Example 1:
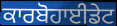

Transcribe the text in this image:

ਕਾਰਬੋਹਾਈਡੇਟ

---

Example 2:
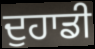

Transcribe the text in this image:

ਦੁਹਾਡੀ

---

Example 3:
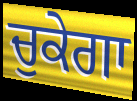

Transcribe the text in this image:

ਚੁਕੇਗਾ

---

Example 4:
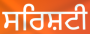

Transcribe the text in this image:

ਸਰਿਸ਼ਟੀ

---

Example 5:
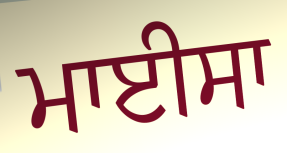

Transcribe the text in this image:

ਮਾਈਸਾ